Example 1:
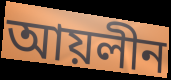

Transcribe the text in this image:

আয়লীন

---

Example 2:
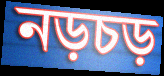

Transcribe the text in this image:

নড়চড়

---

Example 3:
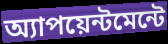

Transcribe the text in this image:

অ্যাপয়েন্টমেন্টে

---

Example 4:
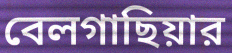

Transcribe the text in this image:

বেলগাছিয়ার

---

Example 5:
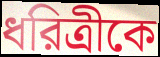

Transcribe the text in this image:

ধরিত্রীকে